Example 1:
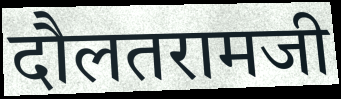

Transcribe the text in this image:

दौलतरामजी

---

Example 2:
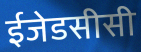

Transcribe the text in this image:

ईजेडसीसी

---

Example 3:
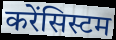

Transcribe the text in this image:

करेंसिस्टम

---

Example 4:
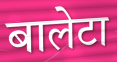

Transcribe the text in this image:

बालेटा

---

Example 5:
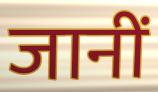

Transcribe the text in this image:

जानीं